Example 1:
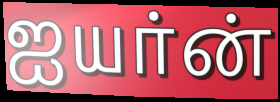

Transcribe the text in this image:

ஐயர்ன்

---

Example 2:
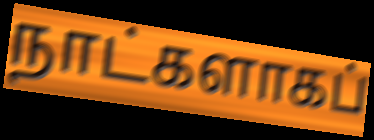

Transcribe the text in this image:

நாட்களாகப்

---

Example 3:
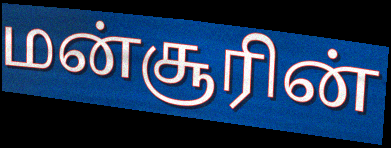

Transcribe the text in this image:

மன்சூரின்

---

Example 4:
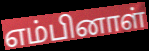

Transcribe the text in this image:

எம்பினாள்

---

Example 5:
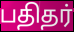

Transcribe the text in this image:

பதிதர்